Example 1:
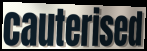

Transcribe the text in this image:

cauterised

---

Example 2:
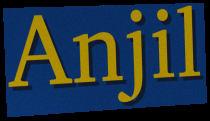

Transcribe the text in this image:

Anjil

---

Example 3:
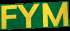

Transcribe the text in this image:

FYM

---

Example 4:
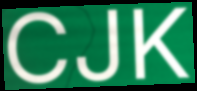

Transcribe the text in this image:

CJK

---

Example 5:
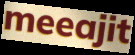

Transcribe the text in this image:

meeajit